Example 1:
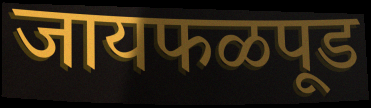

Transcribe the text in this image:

जायफळपूड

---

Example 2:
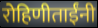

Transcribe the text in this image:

रोहिणीताईंनी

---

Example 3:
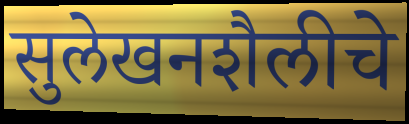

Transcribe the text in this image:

सुलेखनशैलीचे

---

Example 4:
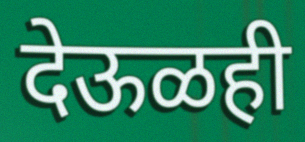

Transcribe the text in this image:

देऊळही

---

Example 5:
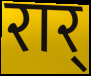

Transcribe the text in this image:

रार्